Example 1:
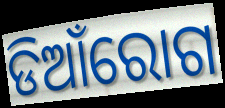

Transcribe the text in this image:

ଡିଆଁରୋଗ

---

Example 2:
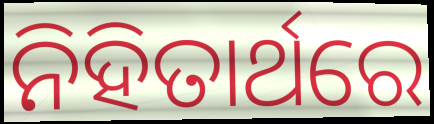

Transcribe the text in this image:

ନିହିତାର୍ଥରେ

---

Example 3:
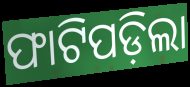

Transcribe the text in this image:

ଫାଟିପଡ଼ିଲା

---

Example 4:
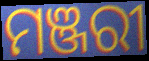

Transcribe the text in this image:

ମଞ୍ଜରୀ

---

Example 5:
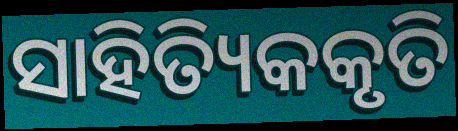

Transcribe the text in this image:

ସାହିତ୍ୟିକକୃତି